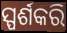
ସ୍ପର୍ଶକରି